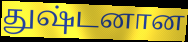
துஷ்டனான